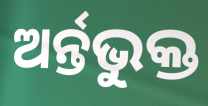
ଅର୍ନ୍ତଭୁକ୍ତ